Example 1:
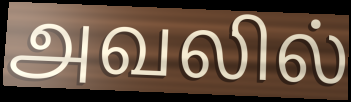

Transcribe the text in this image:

அவலில்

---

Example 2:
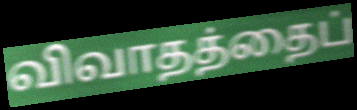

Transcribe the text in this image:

விவாதத்தைப்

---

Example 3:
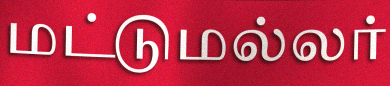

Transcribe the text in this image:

மட்டுமல்லர்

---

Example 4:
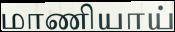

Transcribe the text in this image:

மாணியாய்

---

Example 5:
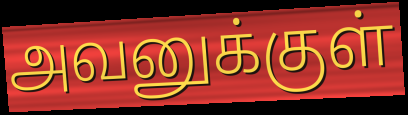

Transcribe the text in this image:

அவனுக்குள்